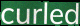
curled